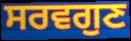
ਸਰਵਗੁਣ